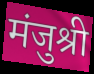
मंजुश्री